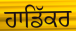
ਹਾਡਿੱਕਰ